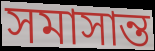
সমাসান্ত